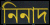
নিনাদ